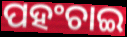
ପହଂଚାଇ